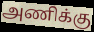
அணிக்கு